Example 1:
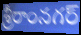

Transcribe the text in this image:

శ్రీరాంనగర్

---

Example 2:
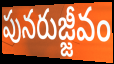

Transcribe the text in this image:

పునరుజ్జీవం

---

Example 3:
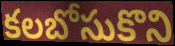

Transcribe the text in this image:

కలబోసుకొని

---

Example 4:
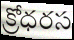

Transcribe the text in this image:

క్రోధరస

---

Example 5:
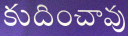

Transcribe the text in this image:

కుదించావు